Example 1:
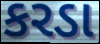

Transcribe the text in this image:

કરડા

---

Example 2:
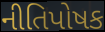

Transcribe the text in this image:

નીતિપોષક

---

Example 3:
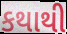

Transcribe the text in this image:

કથાથી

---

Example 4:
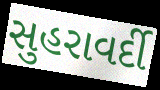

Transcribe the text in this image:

સુહરાવર્દી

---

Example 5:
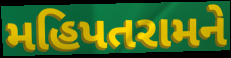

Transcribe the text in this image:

મહિપતરામને